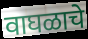
वाघळाचे